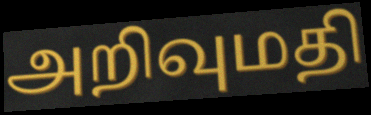
அறிவுமதி